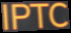
IPTC